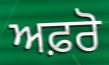
ਅਫ਼ਰੋ